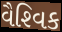
વૈશ્‍વિક